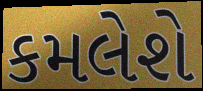
કમલેશે